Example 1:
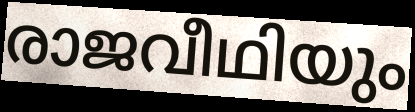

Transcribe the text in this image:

രാജവീഥിയും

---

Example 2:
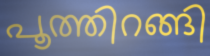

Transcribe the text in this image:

പൂത്തിറങ്ങി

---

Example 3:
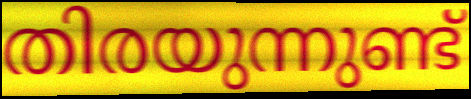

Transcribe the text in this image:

തിരയുന്നുണ്ട്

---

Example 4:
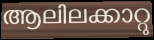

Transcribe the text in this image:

ആലിലക്കാറ്റു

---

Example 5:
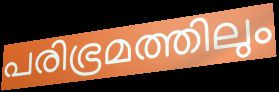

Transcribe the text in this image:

പരിഭ്രമത്തിലും